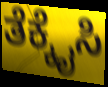
ತೆಕ್ಕೈಸಿ